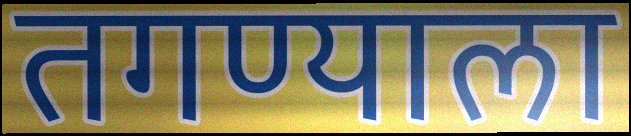
तगण्याला